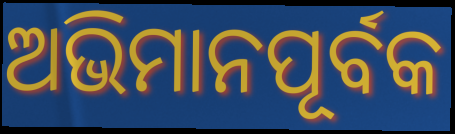
ଅଭିମାନପୂର୍ବକ